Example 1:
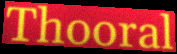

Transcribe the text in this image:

Thooral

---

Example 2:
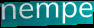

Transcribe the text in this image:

nempe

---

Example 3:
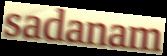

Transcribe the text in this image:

sadanam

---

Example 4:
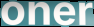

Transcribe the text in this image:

oner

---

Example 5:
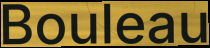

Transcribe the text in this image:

Bouleau